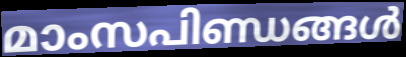
മാംസപിണ്ഡങ്ങൾ